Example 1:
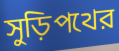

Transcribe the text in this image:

সুড়িপথের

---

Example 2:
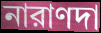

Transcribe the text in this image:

নারাণদা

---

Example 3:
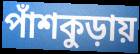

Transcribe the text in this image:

পাঁশকুড়ায়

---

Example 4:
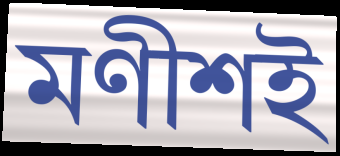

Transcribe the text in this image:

মণীশই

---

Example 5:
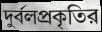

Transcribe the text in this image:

দুর্বলপ্রকৃতির